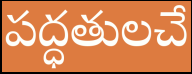
పద్ధతులచే